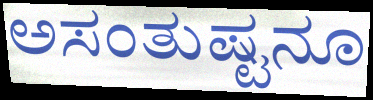
ಅಸಂತುಷ್ಟನೂ